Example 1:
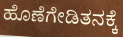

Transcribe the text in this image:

ಹೊಣೆಗೇಡಿತನಕ್ಕೆ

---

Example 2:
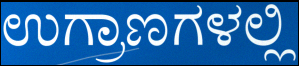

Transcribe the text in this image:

ಉಗ್ರಾಣಗಳಲ್ಲಿ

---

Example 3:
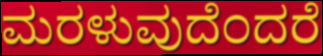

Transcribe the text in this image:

ಮರಳುವುದೆಂದರೆ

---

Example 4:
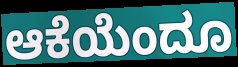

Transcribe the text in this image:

ಆಕೆಯೆಂದೂ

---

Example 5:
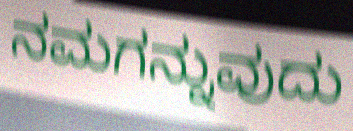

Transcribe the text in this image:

ನಮಗನ್ನುವುದು